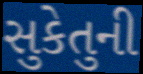
સુકેતુની